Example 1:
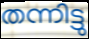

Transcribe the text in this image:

തന്നിട്ടു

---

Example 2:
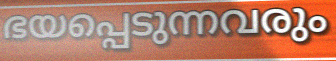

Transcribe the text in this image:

ഭയപ്പെടുന്നവരും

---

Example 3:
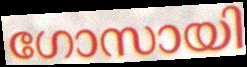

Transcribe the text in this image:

ഗോസായി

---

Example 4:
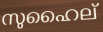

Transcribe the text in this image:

സുഹൈല്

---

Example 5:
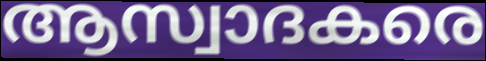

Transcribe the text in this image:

ആസ്വാദകരെ